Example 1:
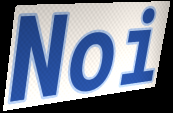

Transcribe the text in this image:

Noi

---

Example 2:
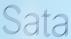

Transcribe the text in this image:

Sata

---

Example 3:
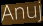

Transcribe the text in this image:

Anuj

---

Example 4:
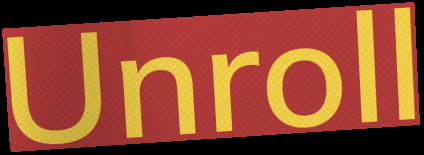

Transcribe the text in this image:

Unroll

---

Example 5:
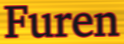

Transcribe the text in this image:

Furen